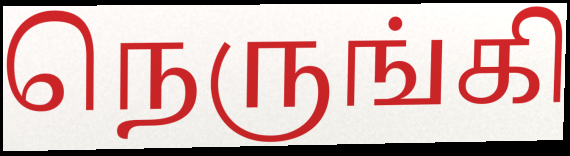
நெருங்கி